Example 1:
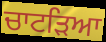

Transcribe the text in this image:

ਚਾਟੜਿਆ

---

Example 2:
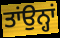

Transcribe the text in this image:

ਤਾਂਉਨ੍ਹਾਂ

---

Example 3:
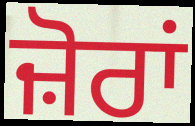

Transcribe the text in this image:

ਜ਼ੋਰਾਂ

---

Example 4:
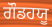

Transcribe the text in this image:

ਗੌਡਹਯੂ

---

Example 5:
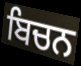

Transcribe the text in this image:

ਬਿਚਨ